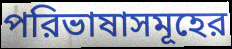
পরিভাষাসমূহের